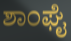
ಶಾಂಘೈ